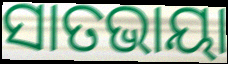
ସାତଭାୟା